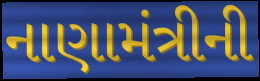
નાણામંત્રીની